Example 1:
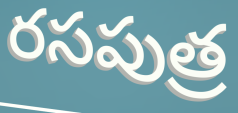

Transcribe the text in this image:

రసపుత్ర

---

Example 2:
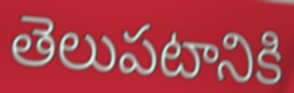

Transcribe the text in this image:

తెలుపటానికి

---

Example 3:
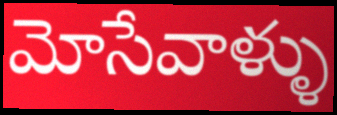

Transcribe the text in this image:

మోసేవాళ్ళు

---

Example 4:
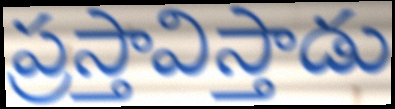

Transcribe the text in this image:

ప్రస్తావిస్తాడు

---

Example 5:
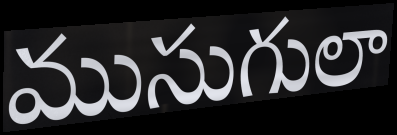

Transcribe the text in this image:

ముసుగులా